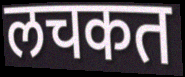
लचकत